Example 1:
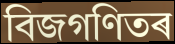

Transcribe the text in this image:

বিজগণিতৰ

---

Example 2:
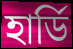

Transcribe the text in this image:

হাৰ্ডি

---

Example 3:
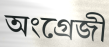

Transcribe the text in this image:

অংগ্ৰেজী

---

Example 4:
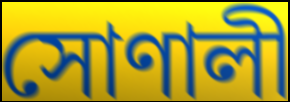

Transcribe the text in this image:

সোণালী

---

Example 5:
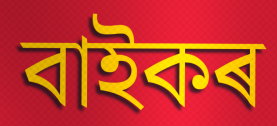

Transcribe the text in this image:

বাইকৰ